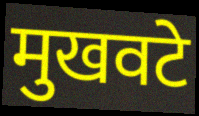
मुखवटे